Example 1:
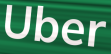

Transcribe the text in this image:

Uber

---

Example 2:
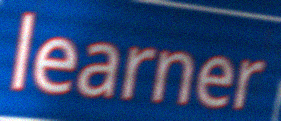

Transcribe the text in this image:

learner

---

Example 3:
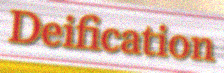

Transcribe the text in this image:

Deification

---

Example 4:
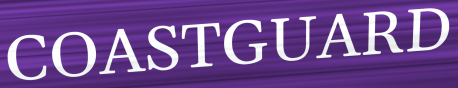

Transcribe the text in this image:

COASTGUARD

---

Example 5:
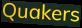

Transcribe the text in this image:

Quakers